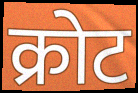
क्रोट